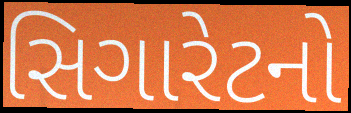
સિગારેટનો